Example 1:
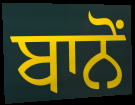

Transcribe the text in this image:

ਬਾਨੋਂ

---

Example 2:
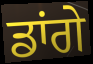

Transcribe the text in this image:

ਡਾਂਗੇ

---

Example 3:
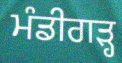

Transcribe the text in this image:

ਮੰਡੀਗੜ੍ਹ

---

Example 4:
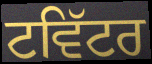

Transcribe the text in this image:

ਟਵਿੱਟਰ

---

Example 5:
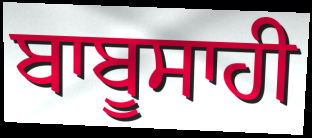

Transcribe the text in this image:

ਬਾਬੂਸਾਹੀ